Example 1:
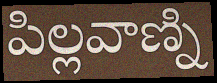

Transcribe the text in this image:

పిల్లవాణ్ని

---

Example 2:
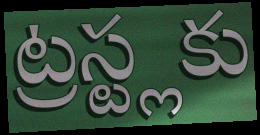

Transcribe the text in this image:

ట్రస్ట్లకు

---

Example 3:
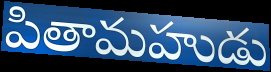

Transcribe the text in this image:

పితామహుడు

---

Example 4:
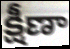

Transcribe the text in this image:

క్షీణా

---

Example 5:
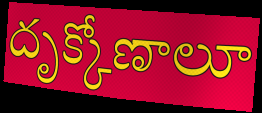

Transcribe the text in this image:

దృక్కోణాలూ